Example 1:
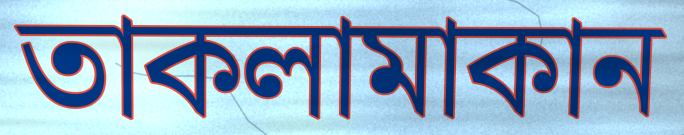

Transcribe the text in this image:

তাকলামাকান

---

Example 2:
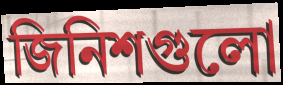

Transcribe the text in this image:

জিনিশগুলো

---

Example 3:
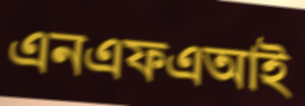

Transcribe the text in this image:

এনএফএআই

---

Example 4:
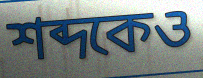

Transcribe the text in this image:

শব্দকেও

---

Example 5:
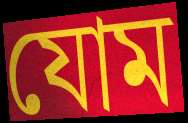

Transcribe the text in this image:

যোম